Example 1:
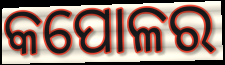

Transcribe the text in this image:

କପୋଳର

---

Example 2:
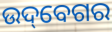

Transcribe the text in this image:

ଉଦ୍‌ବେଗର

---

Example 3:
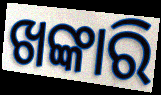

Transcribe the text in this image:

ଖଙ୍କାରି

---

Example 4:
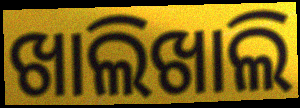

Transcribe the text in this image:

ଖାଲିଖାଲି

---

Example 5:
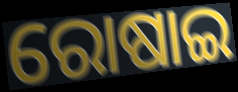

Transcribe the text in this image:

ରୋଷାଇ